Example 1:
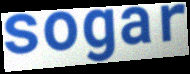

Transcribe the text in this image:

sogar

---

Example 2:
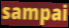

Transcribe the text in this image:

sampai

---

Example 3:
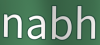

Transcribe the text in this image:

nabh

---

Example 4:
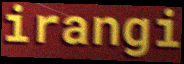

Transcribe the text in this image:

irangi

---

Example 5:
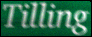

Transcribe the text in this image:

Tilling